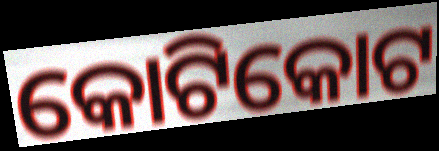
କୋଟିକୋଟ